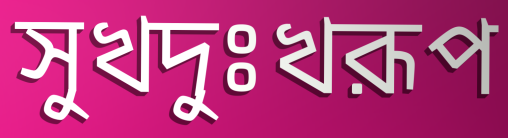
সুখদুঃখরূপ